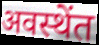
अवस्थेंत